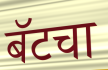
बॅटचा